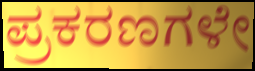
ಪ್ರಕರಣಗಳೇ